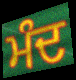
ਮੰਦ